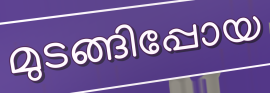
മുടങ്ങിപ്പോയ